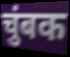
चुंबक